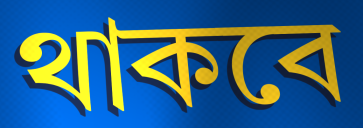
থাকবে